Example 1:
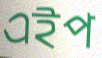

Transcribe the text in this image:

এইপ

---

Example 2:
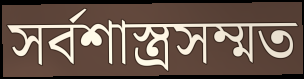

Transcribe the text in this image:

সর্বশাস্ত্রসম্মত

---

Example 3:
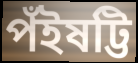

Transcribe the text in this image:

পঁইষট্টি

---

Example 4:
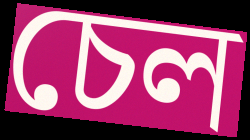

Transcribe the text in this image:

চেল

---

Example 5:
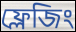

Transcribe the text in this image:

ফ্লেজিং